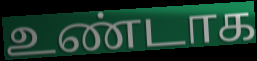
உண்டாக